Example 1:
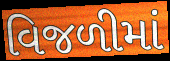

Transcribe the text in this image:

વિજળીમાં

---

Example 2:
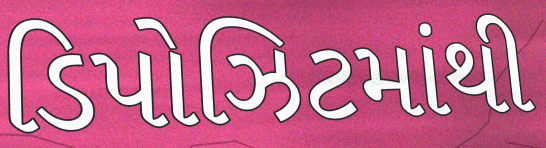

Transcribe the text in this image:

ડિપોઝિટમાંથી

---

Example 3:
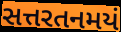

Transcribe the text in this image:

સત્તરતનમયં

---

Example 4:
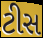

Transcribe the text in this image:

ટીસ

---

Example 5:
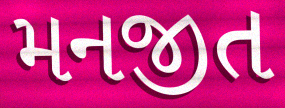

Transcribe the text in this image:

મનજીત